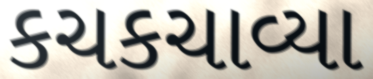
કચકચાવ્યા